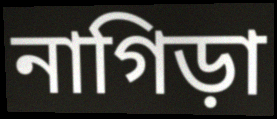
নাগিড়া